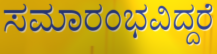
ಸಮಾರಂಭವಿದ್ದರೆ